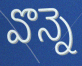
వొన్నె